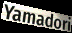
Yamadori